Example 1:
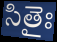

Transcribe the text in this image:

సితైః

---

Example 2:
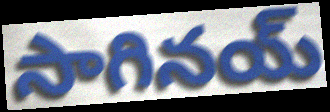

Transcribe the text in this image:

సాగినయ్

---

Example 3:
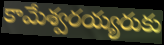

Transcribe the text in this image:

కామేశ్వరయ్యరుకు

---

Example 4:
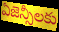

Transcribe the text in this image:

ఏజెన్సీలకు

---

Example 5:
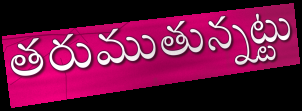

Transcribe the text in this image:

తరుముతున్నట్టు